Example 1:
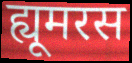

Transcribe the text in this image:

ह्यूमरस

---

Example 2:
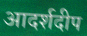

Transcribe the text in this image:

आदर्शदीप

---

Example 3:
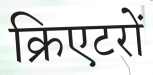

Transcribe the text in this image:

क्रिएटरों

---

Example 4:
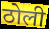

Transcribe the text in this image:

ठोली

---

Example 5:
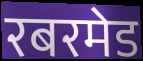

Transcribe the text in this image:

रबरमेड